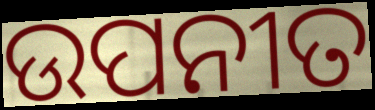
ଉପନୀତ